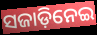
ସଜାଡ଼ିନେଇ